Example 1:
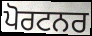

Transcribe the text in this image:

ਪੋਰਟਨਰ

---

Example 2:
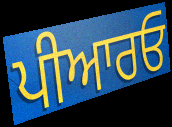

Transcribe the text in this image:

ਪੀਆਰਓ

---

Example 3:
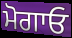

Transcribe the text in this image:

ਮੋਗਾਓ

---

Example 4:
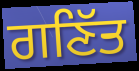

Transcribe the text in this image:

ਗਣਿੱਤ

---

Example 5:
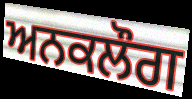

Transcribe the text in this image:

ਅਨਕਲੌਗ